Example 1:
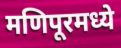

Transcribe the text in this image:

मणिपूरमध्ये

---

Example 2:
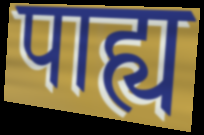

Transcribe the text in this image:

पाह्य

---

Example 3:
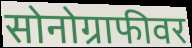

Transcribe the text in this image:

सोनोग्राफीवर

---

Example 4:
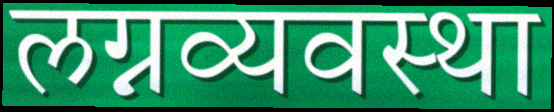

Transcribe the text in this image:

लग्नव्यवस्था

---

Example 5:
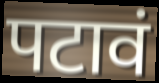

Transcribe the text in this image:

पटावं